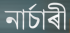
নাৰ্চাৰী